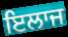
ਇਲਾਜ